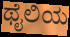
ಥೈಲಿಯ